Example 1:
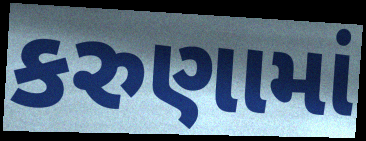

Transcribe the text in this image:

કરુણામાં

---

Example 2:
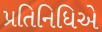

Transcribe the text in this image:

પ્રતિનિધિએ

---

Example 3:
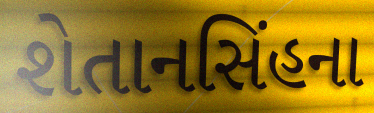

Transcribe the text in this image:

શેતાનસિંહના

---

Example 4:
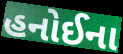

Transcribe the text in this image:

હનોઈના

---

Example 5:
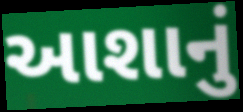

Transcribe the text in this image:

આશાનું